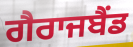
ਗੈਰਾਜਬੈਂਡ